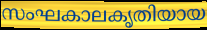
സംഘകാലകൃതിയായ